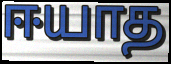
ஈயாத